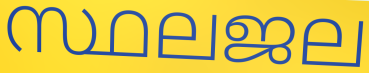
സ്ഥലജല